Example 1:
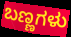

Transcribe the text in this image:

ಬಣ್ಣಗಳು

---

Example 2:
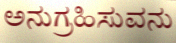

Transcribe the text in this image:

ಅನುಗ್ರಹಿಸುವನು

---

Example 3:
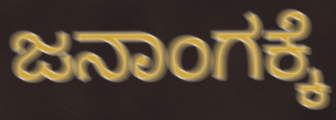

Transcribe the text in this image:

ಜನಾಂಗಕ್ಕೆ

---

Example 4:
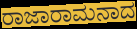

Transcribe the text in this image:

ರಾಜಾರಾಮನಾದ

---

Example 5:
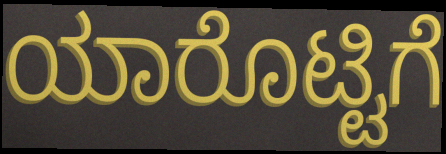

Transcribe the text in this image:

ಯಾರೊಟ್ಟಿಗೆ